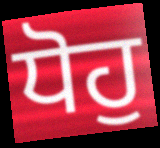
ਧੋਹੁ